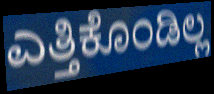
ಎತ್ತಿಕೊಂಡಿಲ್ಲ